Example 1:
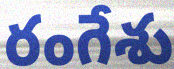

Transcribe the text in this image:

రంగేశు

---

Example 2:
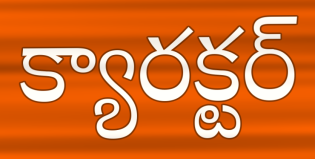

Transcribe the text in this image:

క్యారక్టర్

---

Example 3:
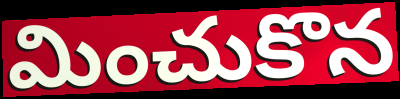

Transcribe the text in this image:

మించుకొన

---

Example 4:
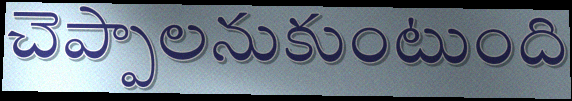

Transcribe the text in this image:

చెప్పాలనుకుంటుంది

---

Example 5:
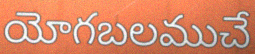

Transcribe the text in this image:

యోగబలముచే